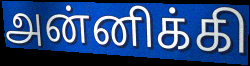
அன்னிக்கி